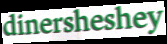
dinersheshey